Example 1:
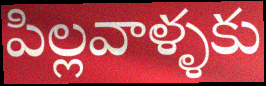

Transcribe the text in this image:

పిల్లవాళ్ళకు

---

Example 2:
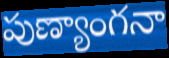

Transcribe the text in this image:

పుణ్యాంగనా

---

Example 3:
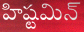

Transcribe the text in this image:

హిష్టమిన్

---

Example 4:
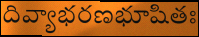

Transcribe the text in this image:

దివ్యాభరణభూషితః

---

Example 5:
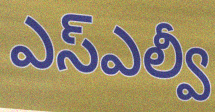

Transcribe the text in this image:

ఎస్ఎల్వీ